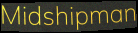
Midshipman